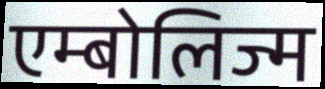
एम्बोलिज्म